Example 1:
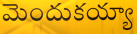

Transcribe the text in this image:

మెందుకయ్యా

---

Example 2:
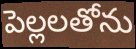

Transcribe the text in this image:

పెల్లలతోను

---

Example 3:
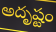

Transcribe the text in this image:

అదృష్టం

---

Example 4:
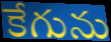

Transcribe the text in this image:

కేగును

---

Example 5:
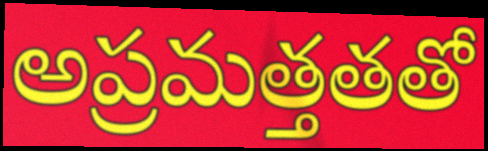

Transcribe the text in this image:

అప్రమత్తతతో